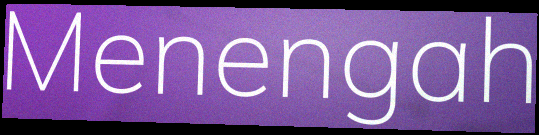
Menengah